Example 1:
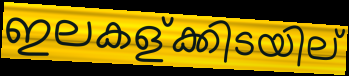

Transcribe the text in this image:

ഇലകള്ക്കിടയില്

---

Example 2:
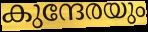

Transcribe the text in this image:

കുന്ദേരയും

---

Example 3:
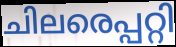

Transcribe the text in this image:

ചിലരെപ്പറ്റി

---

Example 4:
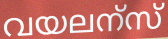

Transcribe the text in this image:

വയലന്സ്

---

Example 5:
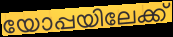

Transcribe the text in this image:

യോപ്പയിലേക്ക്